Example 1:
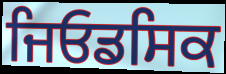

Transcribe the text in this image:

ਜਿਓਡਸਿਕ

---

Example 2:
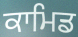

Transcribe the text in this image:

ਕਾਮਿਡ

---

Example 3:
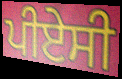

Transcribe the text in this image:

ਪੀਏਸੀ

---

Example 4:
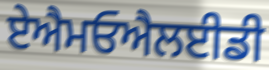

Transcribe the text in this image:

ਏਐਮਓਐਲਈਡੀ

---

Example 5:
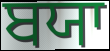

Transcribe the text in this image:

ਬਯਾ